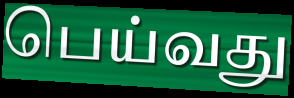
பெய்வது